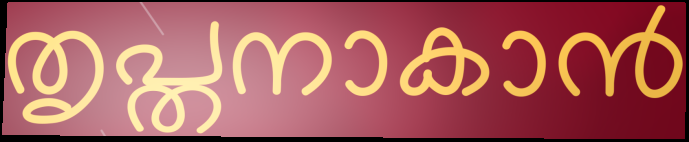
തൃപ്തനാകാൻ